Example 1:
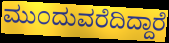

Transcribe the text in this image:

ಮುಂದುವರೆದಿದ್ದಾರೆ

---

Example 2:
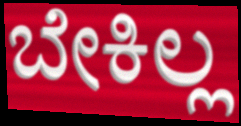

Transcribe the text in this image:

ಬೇಕಿಲ್ಲ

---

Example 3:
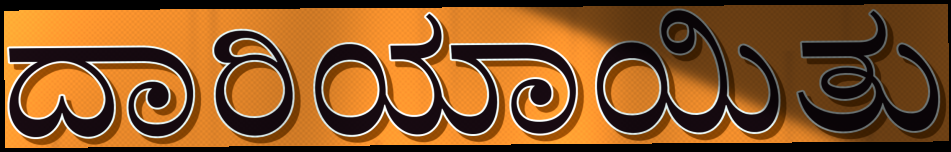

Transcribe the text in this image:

ದಾರಿಯಾಯಿತು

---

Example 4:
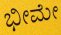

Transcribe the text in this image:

ಭೀಮೇ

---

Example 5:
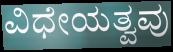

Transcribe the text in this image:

ವಿಧೇಯತ್ವವು